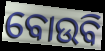
ବୋଉବି